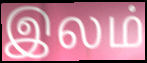
இலம்